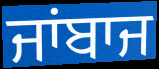
ਜਾਂਬਾਜ